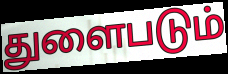
துளைபடும்